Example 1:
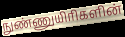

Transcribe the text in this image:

நுண்ணுயிரிகளின்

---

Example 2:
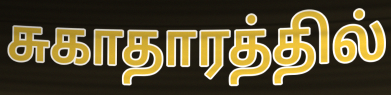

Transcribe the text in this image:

சுகாதாரத்தில்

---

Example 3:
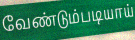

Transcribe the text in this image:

வேண்டும்படியாய்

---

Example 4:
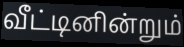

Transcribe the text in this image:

வீட்டினின்றும்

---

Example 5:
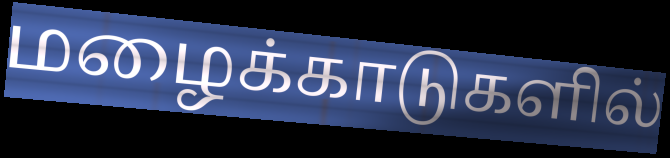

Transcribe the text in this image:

மழைக்காடுகளில்